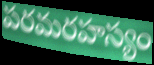
పరమరహస్యం